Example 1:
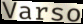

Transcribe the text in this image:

Varso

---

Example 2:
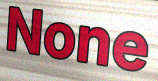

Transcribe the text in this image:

None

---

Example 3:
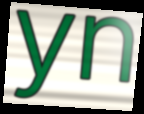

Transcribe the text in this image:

yn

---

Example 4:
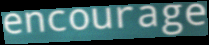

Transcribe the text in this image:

encourage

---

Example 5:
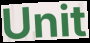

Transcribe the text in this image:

Unit